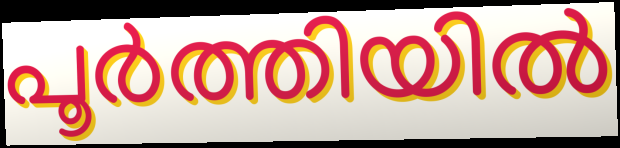
പൂർത്തിയിൽ